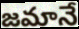
జమానే